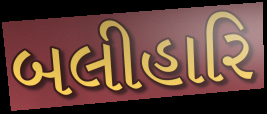
બલીહારિ